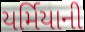
યર્મિયાની